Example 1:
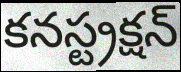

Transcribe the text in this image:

కనస్ట్రక్షన్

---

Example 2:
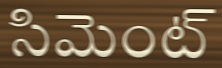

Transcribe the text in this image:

సిమెంట్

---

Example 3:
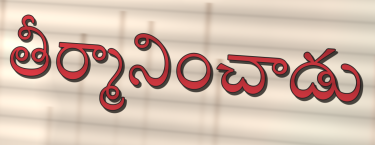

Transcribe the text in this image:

తీర్మానించాడు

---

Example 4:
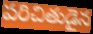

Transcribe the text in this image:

పరిచితుడైన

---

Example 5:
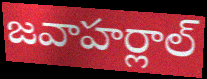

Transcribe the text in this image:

జవాహర్లాల్